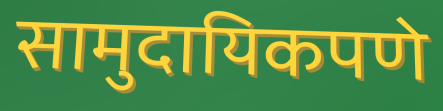
सामुदायिकपणे